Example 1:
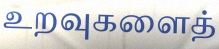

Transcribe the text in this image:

உறவுகளைத்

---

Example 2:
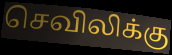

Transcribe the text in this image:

செவிலிக்கு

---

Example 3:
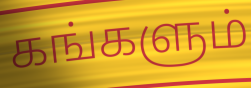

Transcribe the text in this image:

கங்களும்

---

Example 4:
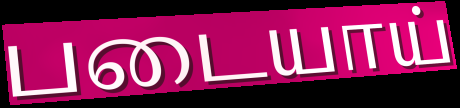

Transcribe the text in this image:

படையாய்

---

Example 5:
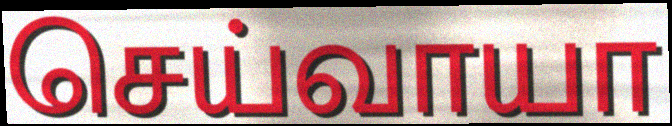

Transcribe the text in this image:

செய்வாயா